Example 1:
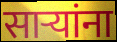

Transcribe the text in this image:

सार्‍यांना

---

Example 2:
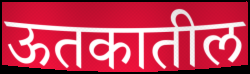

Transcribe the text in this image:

ऊतकातील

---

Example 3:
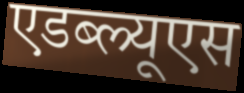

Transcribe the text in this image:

एडब्ल्यूएस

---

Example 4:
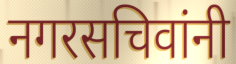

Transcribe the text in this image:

नगरसचिवांनी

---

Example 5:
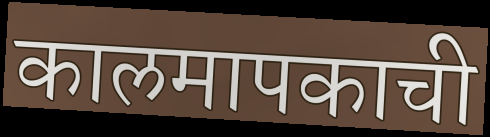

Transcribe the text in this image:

कालमापकाची